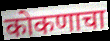
कोकणाचा